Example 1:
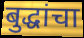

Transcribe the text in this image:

बुद्धांचा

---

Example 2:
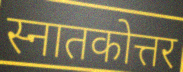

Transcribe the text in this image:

स्नातकोत्तर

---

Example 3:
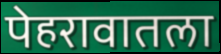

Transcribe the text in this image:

पेहरावातला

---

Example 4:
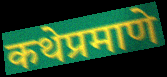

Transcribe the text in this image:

कथेप्रमाणे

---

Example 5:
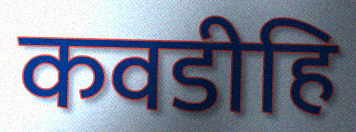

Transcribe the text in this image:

कवडीहि